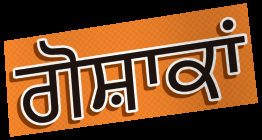
ਗੋਸ਼ਾਕਾਂ